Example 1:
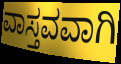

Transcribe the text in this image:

ವಾಸ್ತವವಾಗಿ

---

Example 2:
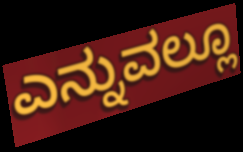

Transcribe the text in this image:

ಎನ್ನುವಲ್ಲೂ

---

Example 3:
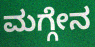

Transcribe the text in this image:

ಮಗ್ಗೇನ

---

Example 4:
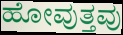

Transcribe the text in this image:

ಹೋವುತ್ತವು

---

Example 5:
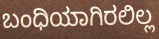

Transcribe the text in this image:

ಬಂಧಿಯಾಗಿರಲಿಲ್ಲ